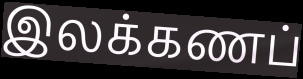
இலக்கணப்